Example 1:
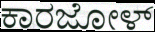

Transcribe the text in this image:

ಕಾರಜೋಳ್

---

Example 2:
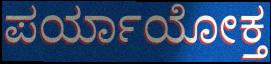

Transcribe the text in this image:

ಪರ್ಯಾಯೋಕ್ತ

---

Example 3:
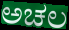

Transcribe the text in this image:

ಅಚಲ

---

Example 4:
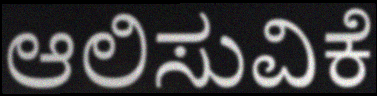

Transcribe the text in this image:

ಆಲಿಸುವಿಕೆ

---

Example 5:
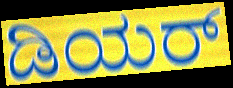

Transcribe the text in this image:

ಡಿಯರ್